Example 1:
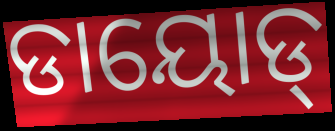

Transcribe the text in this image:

ଡାୟୋଡ୍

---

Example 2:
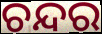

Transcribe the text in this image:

ଚନ୍ଦର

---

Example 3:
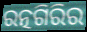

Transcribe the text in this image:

ରତ୍ନଗିରିର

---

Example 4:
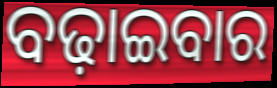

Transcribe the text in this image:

ବଢ଼ାଇବାର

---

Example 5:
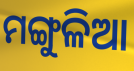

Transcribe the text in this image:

ମଙ୍ଗୁଳିଆ